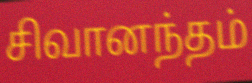
சிவானந்தம்